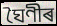
ঘৈণীৰ